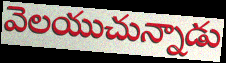
వెలయుచున్నాడు